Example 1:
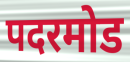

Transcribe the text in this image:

पदरमोड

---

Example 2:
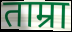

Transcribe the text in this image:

ताम्रा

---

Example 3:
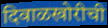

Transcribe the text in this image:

दिवाळखोरीची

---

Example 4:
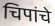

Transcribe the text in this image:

चिपांचे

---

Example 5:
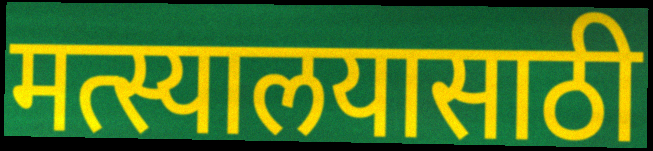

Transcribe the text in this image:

मत्स्यालयासाठी